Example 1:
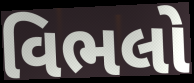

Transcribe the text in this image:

વિભલો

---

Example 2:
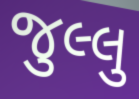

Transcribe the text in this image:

જુલ્લુ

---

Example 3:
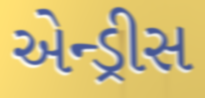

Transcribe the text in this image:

એન્ડ્રીસ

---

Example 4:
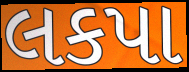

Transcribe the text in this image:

લકપા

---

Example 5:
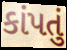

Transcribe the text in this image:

કાંપતું